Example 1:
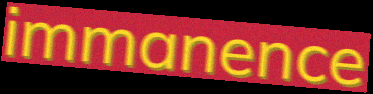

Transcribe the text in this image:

immanence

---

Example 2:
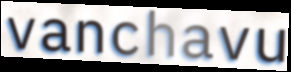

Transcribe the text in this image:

vanchavu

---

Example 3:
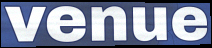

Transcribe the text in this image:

venue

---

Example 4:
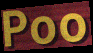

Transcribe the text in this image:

Poo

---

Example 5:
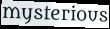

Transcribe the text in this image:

mysterious